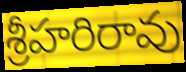
శ్రీహరిరావు